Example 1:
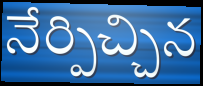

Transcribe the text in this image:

నేర్పిచ్చిన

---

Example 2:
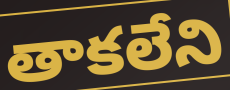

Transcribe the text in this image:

తాకలేని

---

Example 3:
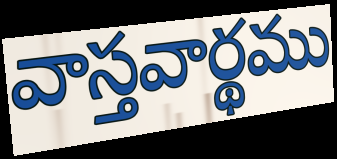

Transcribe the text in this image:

వాస్తవార్థము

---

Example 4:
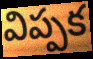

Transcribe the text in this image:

విప్పక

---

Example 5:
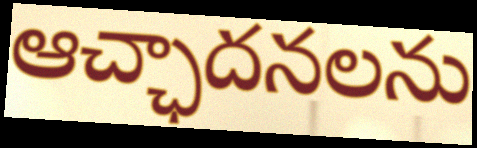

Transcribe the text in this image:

ఆచ్ఛాదనలను